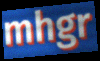
mhgr